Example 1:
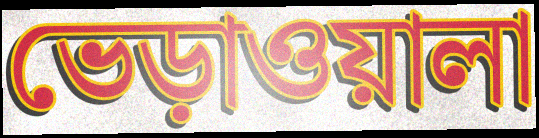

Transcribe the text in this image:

ভেড়াওয়ালা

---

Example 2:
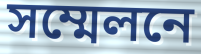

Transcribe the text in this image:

সম্মেলনে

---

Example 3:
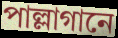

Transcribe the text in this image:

পাল্লাগানে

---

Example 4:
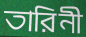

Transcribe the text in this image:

তারিনী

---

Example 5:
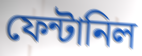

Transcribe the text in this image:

ফেন্টানিল